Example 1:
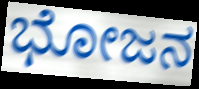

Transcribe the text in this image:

ಭೋಜನ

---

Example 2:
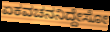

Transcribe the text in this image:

ಏಕವಚನನಿದ್ದೇಸೋ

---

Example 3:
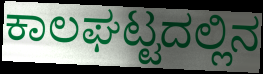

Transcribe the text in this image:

ಕಾಲಘಟ್ಟದಲ್ಲಿನ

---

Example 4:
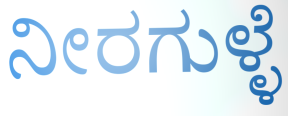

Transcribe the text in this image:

ನೀರಗುಳ್ಳೆ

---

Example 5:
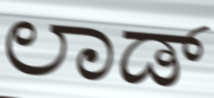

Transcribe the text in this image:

ಲಾಡ್